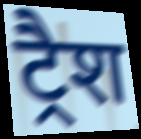
ट्रैश